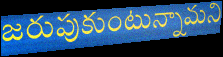
జరుపుకుంటున్నామని